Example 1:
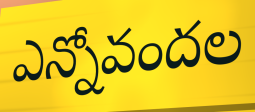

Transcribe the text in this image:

ఎన్నోవందల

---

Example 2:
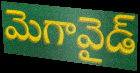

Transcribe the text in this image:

మెగావైడ్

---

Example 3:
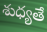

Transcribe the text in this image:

శుధ్యతే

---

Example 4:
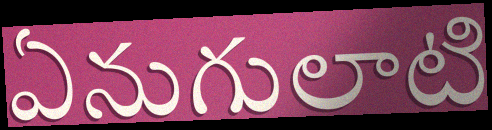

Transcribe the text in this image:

ఏనుగులాటి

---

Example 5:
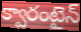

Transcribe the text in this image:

క్వారంటైన్